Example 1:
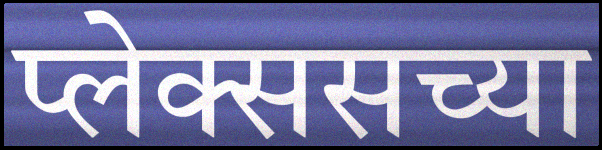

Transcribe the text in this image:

प्लेक्ससच्या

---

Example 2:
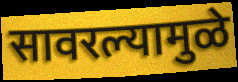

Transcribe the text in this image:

सावरल्यामुळे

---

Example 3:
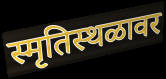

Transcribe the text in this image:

स्मृतिस्थळावर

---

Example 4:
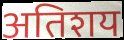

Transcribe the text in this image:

अतिशय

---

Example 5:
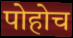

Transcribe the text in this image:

पोहोच